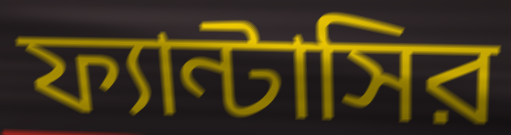
ফ্যান্টাসির